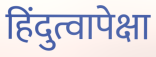
हिंदुत्वापेक्षा